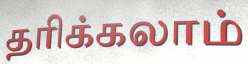
தரிக்கலாம்